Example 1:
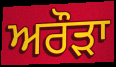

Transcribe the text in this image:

ਅਰੌੜਾ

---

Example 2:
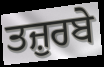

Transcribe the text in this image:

ਤਜ਼ੁਰਬੇ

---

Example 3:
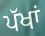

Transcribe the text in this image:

ਪੱਖਾਂ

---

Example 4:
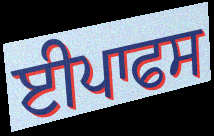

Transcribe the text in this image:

ਈਪਾਫਸ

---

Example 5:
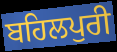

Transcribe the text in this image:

ਬਹਿਲਪੁਰੀ